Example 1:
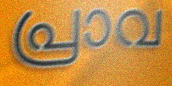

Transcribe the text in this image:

പ്രാവ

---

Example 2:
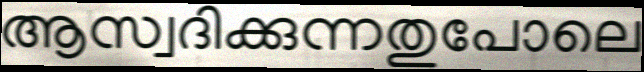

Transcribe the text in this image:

ആസ്വദിക്കുന്നതുപോലെ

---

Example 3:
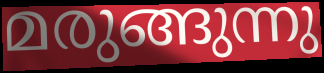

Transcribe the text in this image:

മരുങ്ങുന്നു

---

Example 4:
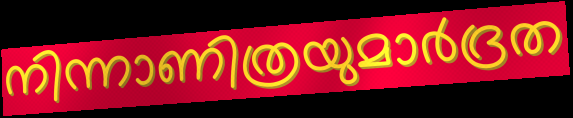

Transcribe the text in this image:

നിന്നാണിത്രയുമാർദ്രത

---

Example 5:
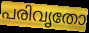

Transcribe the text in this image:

പരിവൃതോ